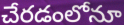
చేరడంలోనూ